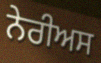
ਨੇਰੀਅਸ